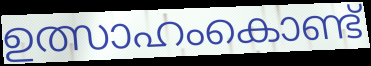
ഉത്സാഹംകൊണ്ട്